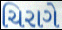
ચિરાગે